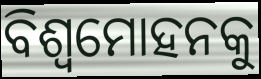
ବିଶ୍ଵମୋହନକୁ